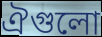
ঐগুলো